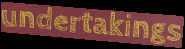
undertakings